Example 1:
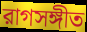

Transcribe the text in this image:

রাগসঙ্গীত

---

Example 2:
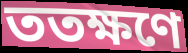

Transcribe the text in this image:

ততক্ষণে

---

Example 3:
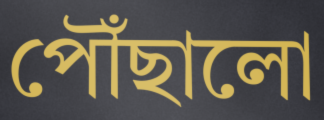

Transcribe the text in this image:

পৌঁছালো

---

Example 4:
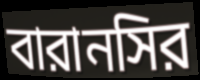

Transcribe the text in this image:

বারানসির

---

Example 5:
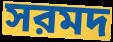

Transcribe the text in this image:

সরমদ